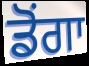
ਡੋਂਗਾ